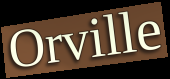
Orville